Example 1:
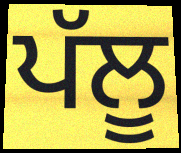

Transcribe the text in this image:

ਪੱਲੂ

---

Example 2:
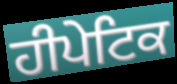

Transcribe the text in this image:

ਹੀਪੇਟਿਕ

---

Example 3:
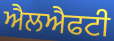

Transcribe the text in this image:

ਐਲਐਫਟੀ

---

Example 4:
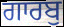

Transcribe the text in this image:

ਗਾਰਬੁ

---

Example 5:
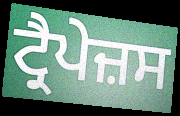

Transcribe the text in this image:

ਟ੍ਰੈਪੇਜ਼ਸ